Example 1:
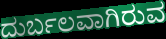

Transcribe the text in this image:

ದುರ್ಬಲವಾಗಿರುವ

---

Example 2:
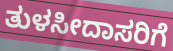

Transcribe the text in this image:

ತುಳಸೀದಾಸರಿಗೆ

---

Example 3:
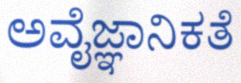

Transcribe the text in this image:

ಅವೈಜ್ಞಾನಿಕತೆ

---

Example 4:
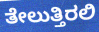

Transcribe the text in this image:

ತೇಲುತ್ತಿರಲಿ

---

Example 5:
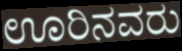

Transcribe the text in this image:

ಊರಿನವರು